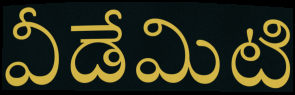
వీడేమిటి